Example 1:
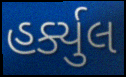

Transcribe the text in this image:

હર્ક્યુલ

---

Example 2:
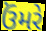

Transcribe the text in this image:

ઉંમરે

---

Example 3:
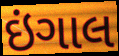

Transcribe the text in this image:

ઇંગાલ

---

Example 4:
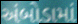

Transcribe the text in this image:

અંબોડામાં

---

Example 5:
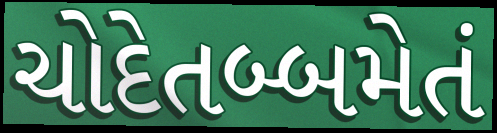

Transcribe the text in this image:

ચોદેતબ્બમેતં